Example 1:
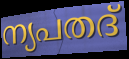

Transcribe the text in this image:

ന്യപതദ്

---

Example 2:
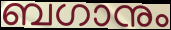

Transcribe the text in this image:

ബഗാനും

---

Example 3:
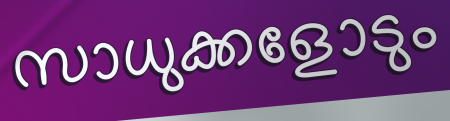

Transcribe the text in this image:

സാധുക്കളോടും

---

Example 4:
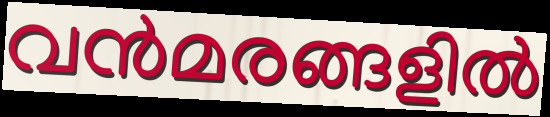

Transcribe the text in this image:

വൻമരങ്ങളിൽ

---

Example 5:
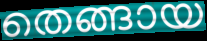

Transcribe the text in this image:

തെങ്ങായ